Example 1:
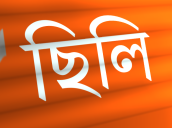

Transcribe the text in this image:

ছিলি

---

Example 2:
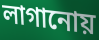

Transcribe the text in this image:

লাগানোয়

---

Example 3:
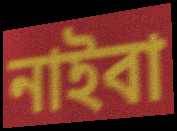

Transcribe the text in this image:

নাইবা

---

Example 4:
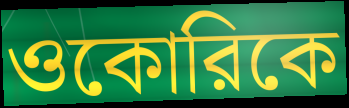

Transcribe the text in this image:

ওকোরিকে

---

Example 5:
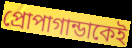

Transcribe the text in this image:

প্রোপাগান্ডাকেই